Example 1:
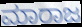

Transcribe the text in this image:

ಮಾರಾಜ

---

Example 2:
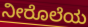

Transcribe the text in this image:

ನೀರೊಲೆಯ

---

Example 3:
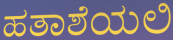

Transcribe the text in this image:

ಹತಾಶೆಯಲಿ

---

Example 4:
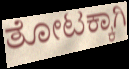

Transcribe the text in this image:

ತೋಟಕ್ಕಾಗಿ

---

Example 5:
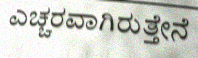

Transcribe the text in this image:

ಎಚ್ಚರವಾಗಿರುತ್ತೇನೆ